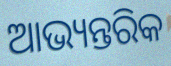
ଆଭ୍ୟନ୍ତରିକ